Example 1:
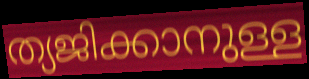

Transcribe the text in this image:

ത്യജിക്കാനുള്ള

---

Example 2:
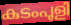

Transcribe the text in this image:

കുടംപുളി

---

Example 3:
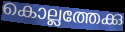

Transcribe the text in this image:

കൊല്ലത്തേക്കു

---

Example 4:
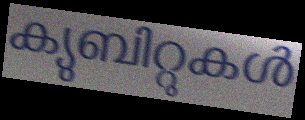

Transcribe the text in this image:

ക്യുബിറ്റുകൾ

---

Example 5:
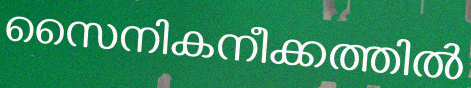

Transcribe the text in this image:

സൈനികനീക്കത്തിൽ